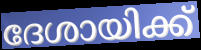
ദേശായിക്ക്